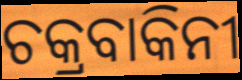
ଚକ୍ରବାକିନୀ